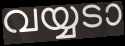
വയ്യടാ